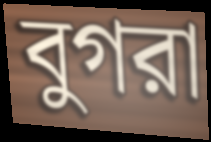
বুগরা